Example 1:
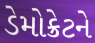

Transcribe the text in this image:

ડેમોક્રેટને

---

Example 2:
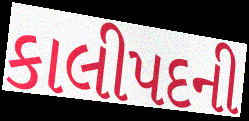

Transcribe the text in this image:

કાલીપદની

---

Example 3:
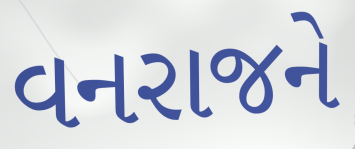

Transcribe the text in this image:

વનરાજને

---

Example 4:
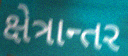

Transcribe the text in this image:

ક્ષેત્રાન્તર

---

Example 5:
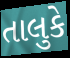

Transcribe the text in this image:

તાલુકે